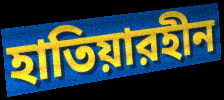
হাতিয়ারহীন